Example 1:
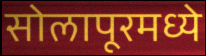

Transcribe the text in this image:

सोलापूरमध्ये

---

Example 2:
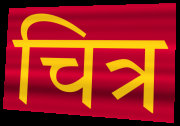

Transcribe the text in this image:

चित्र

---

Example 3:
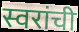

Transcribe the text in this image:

स्वरांची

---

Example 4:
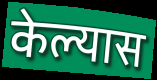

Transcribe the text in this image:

केल्यास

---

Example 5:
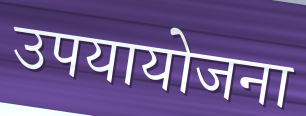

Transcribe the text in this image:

उपयायोजना